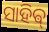
ସାହିଵ୍